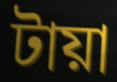
টায়া